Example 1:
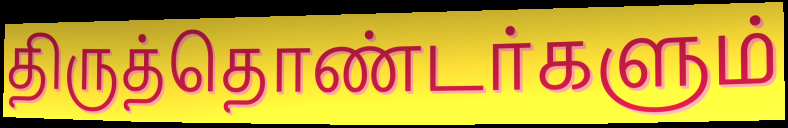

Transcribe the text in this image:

திருத்தொண்டர்களும்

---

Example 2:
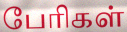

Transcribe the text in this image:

பேரிகள்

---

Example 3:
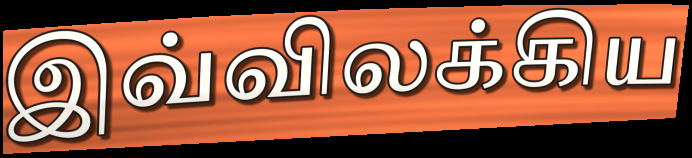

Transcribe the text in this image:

இவ்விலக்கிய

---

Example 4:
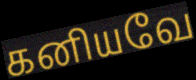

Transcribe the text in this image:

கனியவே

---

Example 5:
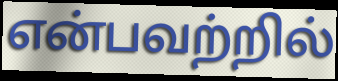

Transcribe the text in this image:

என்பவற்றில்